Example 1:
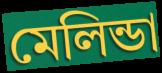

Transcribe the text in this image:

মেলিন্ডা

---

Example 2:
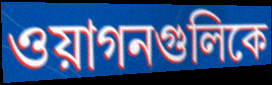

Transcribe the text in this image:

ওয়াগনগুলিকে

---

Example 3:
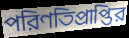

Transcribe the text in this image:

পরিণতিপ্রাপ্তির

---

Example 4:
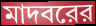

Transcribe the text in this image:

মাদবরের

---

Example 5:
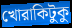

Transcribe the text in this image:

খোরাকিটুকু